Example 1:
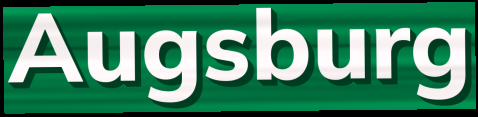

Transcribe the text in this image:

Augsburg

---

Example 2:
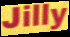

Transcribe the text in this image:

Jilly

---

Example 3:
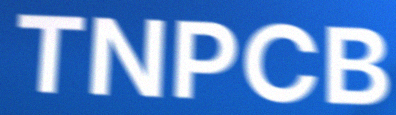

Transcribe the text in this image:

TNPCB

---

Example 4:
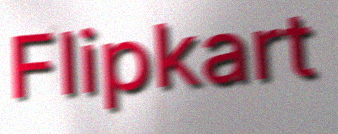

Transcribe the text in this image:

Flipkart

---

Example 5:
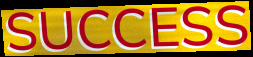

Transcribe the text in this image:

SUCCESS